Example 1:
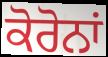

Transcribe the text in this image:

ਕੋਰੋਨਾਂ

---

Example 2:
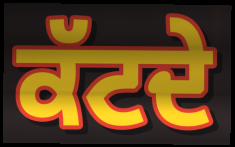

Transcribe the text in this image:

ਕੱਟਦੇ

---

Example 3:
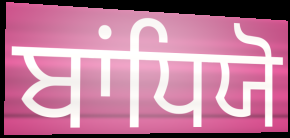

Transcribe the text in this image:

ਬਾਂਧਿਯੋ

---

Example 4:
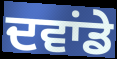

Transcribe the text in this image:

ਦਵਾਂਡੇ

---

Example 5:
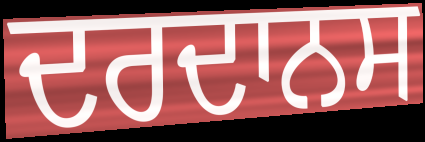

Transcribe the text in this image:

ਦਰਦਾਨਸ